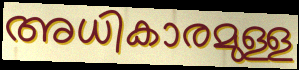
അധികാരമുള്ള